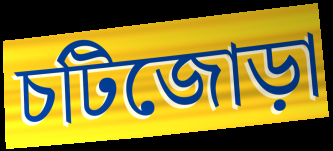
চটিজোড়া